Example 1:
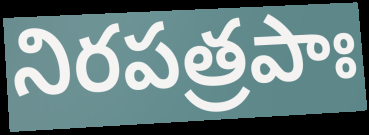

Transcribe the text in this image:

నిరపత్రపాః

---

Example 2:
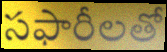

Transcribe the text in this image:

సఫారీలతో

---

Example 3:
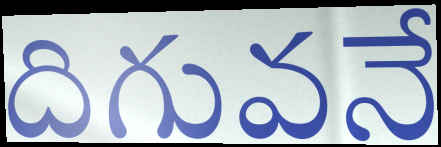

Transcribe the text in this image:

దిగువనే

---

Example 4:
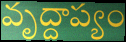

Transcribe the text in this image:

వృద్దాప్యం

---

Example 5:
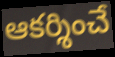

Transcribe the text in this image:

ఆకర్శించే